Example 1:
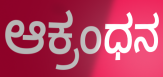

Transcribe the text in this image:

ಆಕ್ರಂಧನ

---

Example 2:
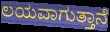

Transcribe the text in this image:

ಲಯವಾಗುತ್ತಾನೆ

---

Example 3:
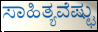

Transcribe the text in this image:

ಸಾಹಿತ್ಯವೆಷ್ಟು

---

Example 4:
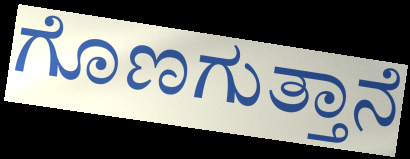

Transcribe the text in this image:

ಗೊಣಗುತ್ತಾನೆ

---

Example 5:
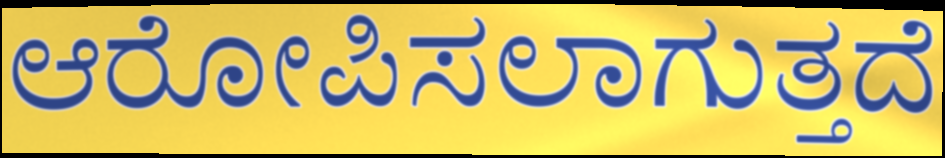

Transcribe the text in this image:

ಆರೋಪಿಸಲಾಗುತ್ತದೆ